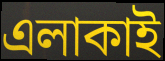
এলাকাই